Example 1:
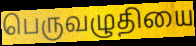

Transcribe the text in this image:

பெருவழுதியை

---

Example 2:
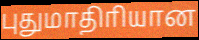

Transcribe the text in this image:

புதுமாதிரியான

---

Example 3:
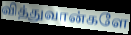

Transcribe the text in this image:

வித்துவான்களே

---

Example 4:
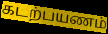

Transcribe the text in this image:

கடற்பயணம்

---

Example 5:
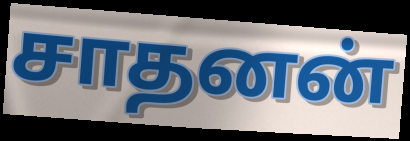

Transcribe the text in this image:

சாதனன்